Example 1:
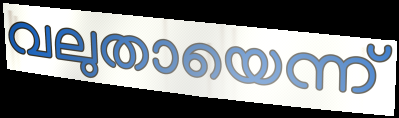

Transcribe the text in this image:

വലുതായെന്ന്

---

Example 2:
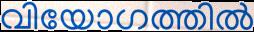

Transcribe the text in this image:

വിയോഗത്തിൽ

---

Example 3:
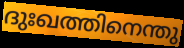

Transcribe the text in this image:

ദുഃഖത്തിനെന്തു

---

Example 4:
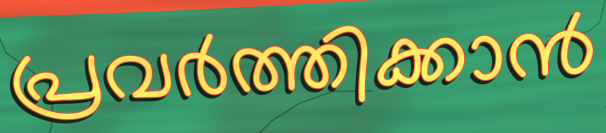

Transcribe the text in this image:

പ്രവർത്തിക്കാൻ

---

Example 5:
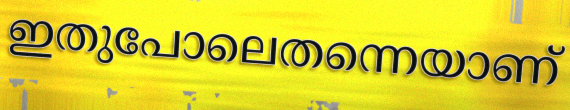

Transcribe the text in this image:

ഇതുപോലെതന്നെയാണ്